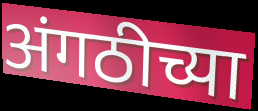
अंगठीच्या